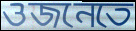
ওজনেতে